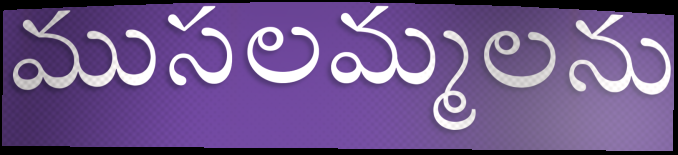
ముసలమ్మలను